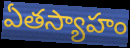
ఏతస్యాహం